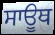
ਸਾਊਥ